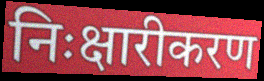
निःक्षारीकरण